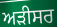
ਅੜੀਸਰ